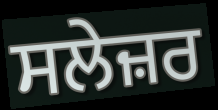
ਸਲੇਜ਼ਰ